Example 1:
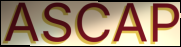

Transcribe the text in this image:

ASCAP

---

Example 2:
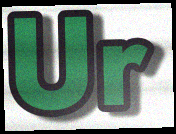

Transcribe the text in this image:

Ur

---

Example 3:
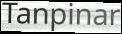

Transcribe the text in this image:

Tanpinar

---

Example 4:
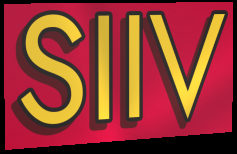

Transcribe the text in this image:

SIIV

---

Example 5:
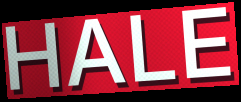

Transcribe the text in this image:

HALE